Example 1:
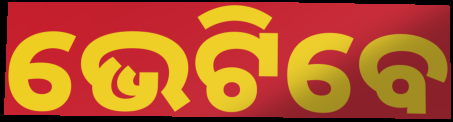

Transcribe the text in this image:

ଭେଟିବେ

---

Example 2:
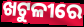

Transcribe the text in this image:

ଖଟୁଳୀରେ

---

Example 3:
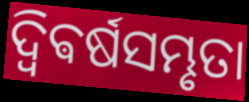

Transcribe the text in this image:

ଦ୍ଵିଵର୍ଷସମ୍ଭୃତା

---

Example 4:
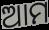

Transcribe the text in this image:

ଆମ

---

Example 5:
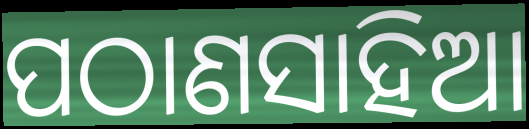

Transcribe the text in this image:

ପଠାଣସାହିଆ